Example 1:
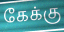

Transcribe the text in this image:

கேக்கு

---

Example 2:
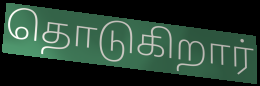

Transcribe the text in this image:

தொடுகிறார்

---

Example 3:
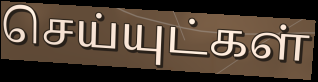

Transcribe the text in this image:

செய்யுட்கள்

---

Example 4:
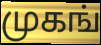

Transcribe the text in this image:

முகங்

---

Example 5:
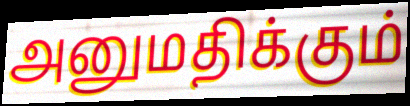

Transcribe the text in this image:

அனுமதிக்கும்